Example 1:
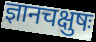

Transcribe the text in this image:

ज्ञानचक्षुषः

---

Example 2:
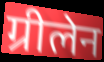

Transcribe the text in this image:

ग्रीलेन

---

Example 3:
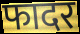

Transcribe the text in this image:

फादर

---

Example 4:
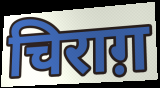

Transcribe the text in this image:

चिराग़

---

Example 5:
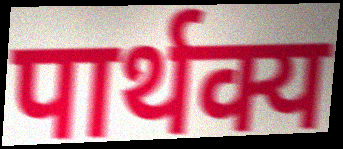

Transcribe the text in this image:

पार्थक्य